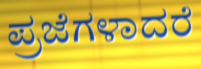
ಪ್ರಜೆಗಳಾದರೆ